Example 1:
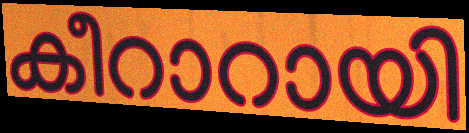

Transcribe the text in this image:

കീറാറായി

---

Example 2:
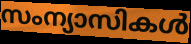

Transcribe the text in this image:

സംന്യാസികൾ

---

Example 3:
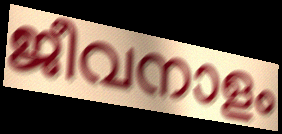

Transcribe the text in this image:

ജീവനാളം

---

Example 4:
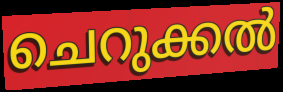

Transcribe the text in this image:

ചെറുക്കൽ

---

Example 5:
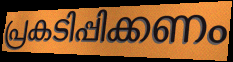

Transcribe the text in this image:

പ്രകടിപ്പിക്കണം